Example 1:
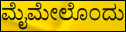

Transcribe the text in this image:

ಮೈಮೇಲೊಂದು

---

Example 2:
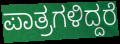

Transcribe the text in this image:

ಪಾತ್ರಗಳಿದ್ದರೆ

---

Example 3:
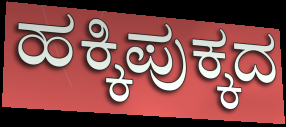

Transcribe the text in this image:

ಹಕ್ಕಿಪುಕ್ಕದ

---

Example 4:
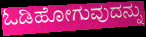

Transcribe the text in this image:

ಓಡಿಹೋಗುವುದನ್ನು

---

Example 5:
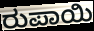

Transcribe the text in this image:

ರುಪಾಯಿ